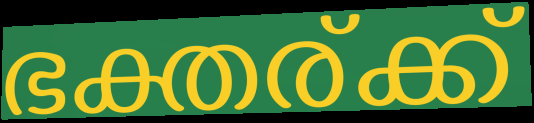
ഭക്തര്ക്ക്